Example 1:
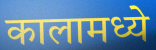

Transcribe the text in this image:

कालामध्ये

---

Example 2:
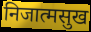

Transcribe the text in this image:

निजात्मसुख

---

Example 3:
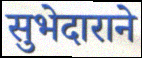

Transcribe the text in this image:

सुभेदाराने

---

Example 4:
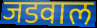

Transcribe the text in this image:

जडवाल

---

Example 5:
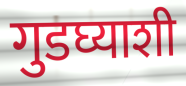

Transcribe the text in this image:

गुडघ्याशी